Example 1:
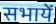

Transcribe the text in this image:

सभायें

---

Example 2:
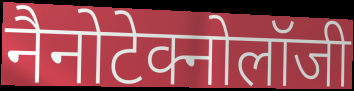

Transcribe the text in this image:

नैनोटेक्नोलॉजी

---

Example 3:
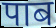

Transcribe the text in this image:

पाब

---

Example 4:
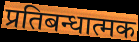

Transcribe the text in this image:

प्रतिबन्धात्मक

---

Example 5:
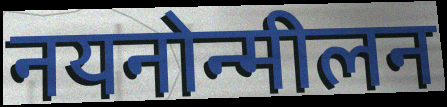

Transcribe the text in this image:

नयनोन्मीलन